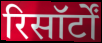
रिसॉर्टों